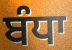
ਬੰਧਾ